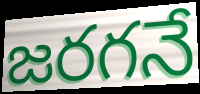
జరగనే